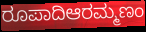
ರೂಪಾದಿಆರಮ್ಮಣಂ